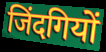
जिंदगियों